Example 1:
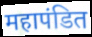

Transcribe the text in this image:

महापंडित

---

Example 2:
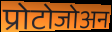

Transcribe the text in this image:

प्रोटोजोअन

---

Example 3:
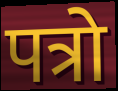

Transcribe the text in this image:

पत्रो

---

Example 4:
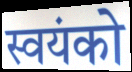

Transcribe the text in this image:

स्वयंको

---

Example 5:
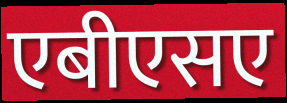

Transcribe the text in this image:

एबीएसए